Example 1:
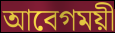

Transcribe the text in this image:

আবেগময়ী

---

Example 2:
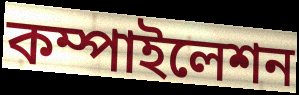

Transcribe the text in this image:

কম্পাইলেশন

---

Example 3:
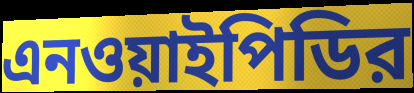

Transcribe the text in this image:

এনওয়াইপিডির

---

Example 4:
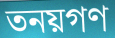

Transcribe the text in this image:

তনয়গণ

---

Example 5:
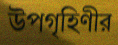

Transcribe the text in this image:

উপগৃহিণীর